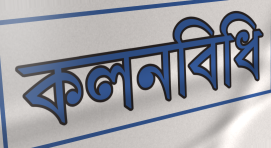
কলনবিধি